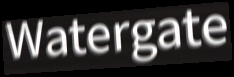
Watergate